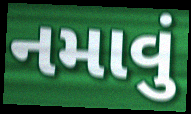
નમાવું